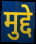
मुद्दे